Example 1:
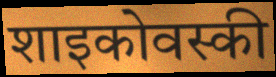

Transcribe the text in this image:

शाइकोवस्की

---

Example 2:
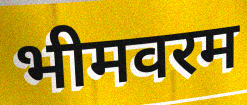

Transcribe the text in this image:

भीमवरम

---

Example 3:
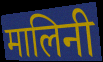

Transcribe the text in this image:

मालिनी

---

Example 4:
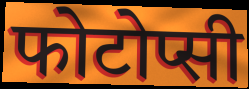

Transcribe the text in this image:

फोटोप्सी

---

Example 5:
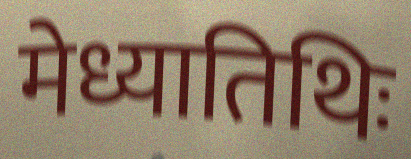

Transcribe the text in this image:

मेध्यातिथिः